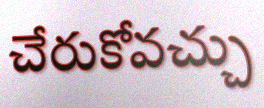
చేరుకోవచ్చు